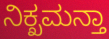
ನಿಕ್ಖಮನ್ತಾ